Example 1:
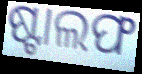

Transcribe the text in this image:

ଷ୍ଟାଲଫ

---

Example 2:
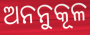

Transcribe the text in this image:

ଅନନୁକୂଳ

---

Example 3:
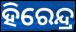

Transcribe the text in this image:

ହିରେନ୍ଦ୍ର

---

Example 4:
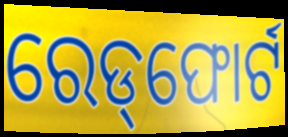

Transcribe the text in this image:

ରେଡ୍‌ଫୋର୍ଟ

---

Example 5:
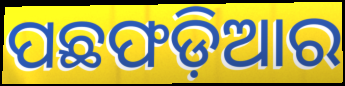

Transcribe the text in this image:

ପଛଫଡ଼ିଆର